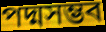
পদ্মসম্ভব